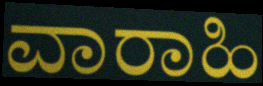
ವಾರಾಹಿ